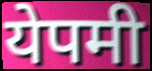
येपमी